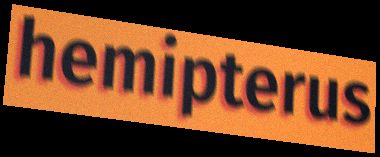
hemipterus